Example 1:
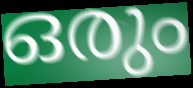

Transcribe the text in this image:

ഒരും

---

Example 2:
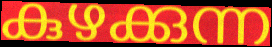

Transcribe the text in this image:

കുഴക്കുന്ന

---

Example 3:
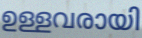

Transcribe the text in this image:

ഉള്ളവരായി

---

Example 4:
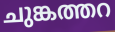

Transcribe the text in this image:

ചുങ്കത്തറ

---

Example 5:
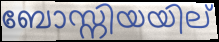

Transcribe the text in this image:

ബോസ്നിയയില്